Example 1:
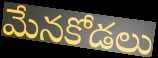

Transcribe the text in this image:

మేనకోడలు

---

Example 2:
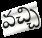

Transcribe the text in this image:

వచ్చి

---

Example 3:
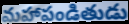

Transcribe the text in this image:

మహాపండితుడు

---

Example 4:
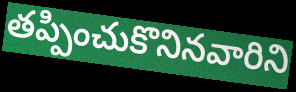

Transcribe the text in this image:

తప్పించుకొనినవారిని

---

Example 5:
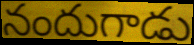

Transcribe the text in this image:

నందుగాడు